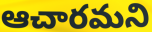
ఆచారమని